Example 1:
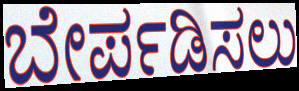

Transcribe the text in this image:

ಬೇರ್ಪಡಿಸಲು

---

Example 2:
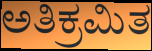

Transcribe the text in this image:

ಅತಿಕ್ರಮಿತ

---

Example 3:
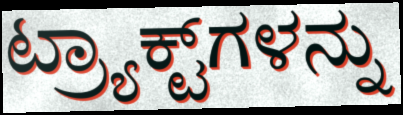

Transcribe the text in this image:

ಟ್ರ್ಯಾಕ್ಟ್‌ಗಳನ್ನು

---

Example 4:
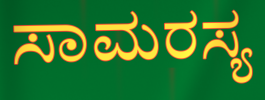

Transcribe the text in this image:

ಸಾಮರಸ್ಯ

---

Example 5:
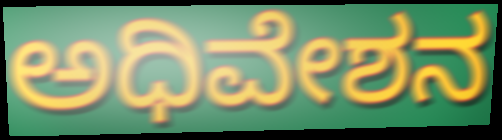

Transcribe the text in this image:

ಅಧಿವೇಶನ